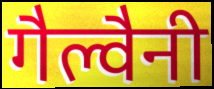
गैल्वैनी